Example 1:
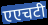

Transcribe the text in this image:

एएचटी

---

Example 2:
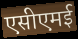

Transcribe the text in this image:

एसीएमई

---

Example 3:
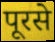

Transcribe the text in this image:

पूरसे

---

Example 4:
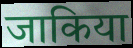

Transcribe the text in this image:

जाकिया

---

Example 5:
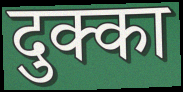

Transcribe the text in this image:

दुक्का